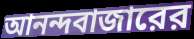
আনন্দবাজারের